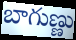
బాగుణ్ణు